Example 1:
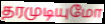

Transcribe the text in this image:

தரமுடியுமோ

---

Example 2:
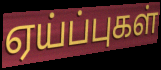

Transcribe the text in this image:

ஏய்ப்புகள்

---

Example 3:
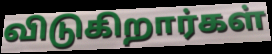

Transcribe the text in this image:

விடுகிறார்கள்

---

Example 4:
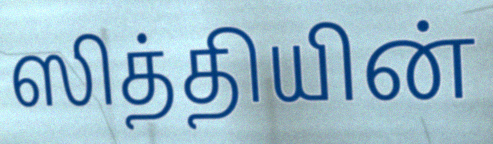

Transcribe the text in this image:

ஸித்தியின்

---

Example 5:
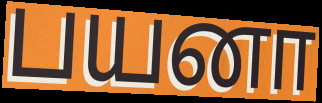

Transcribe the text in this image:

பயனா